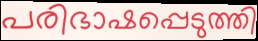
പരിഭാഷപ്പെടുത്തി